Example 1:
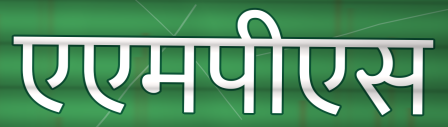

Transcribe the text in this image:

एएमपीएस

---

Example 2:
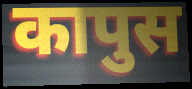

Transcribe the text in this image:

कापुस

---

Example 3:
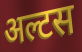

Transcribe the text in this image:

अल्टस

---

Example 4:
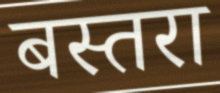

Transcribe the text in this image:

बस्तरा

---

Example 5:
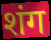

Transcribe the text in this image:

शंग